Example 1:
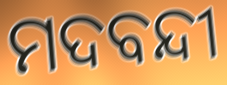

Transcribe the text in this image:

ମଦବନ୍ଦୀ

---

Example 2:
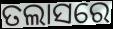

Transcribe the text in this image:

ତଲାସରେ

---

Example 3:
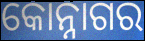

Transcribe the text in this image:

କୋନ୍ନାଗର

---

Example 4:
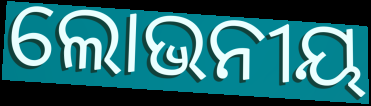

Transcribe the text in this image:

ଲୋଭନୀୟ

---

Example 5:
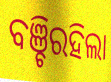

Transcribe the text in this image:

ବଞ୍ଚିରହିଲା